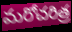
మరోచరిత్ర